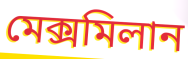
মেক্সমিলান